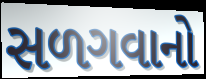
સળગવાનો